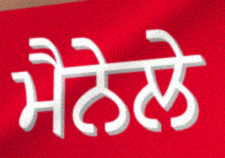
ਮੈਨੇਲੇ